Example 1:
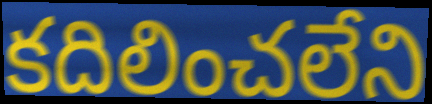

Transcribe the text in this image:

కదిలించలేని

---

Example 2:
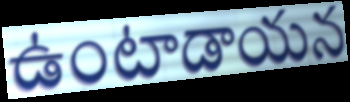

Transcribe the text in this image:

ఉంటాడాయన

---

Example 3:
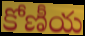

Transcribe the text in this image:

కోణీయ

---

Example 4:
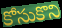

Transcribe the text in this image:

కోసుకొని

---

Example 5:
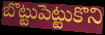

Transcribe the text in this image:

బొట్టుపెట్టుకొని